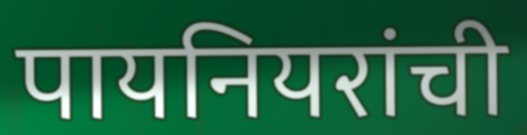
पायनियरांची